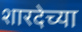
शारदेच्या